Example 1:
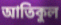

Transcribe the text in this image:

আতিকুল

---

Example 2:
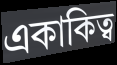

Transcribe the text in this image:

একাকিত্ব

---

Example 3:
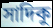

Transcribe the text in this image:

সাদিকু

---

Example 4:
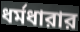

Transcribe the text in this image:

ধর্মধারার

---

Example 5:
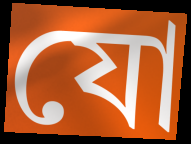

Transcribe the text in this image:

যো